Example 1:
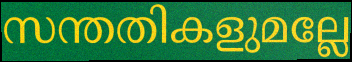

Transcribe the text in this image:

സന്തതികളുമല്ലേ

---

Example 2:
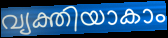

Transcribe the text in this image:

വ്യക്തിയാകാം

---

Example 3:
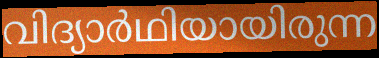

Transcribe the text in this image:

വിദ്യാർഥിയായിരുന്ന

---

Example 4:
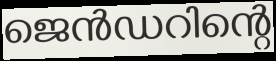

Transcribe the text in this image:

ജെൻഡറിന്റെ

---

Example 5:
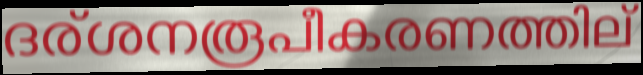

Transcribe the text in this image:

ദര്ശനരൂപീകരണത്തില്